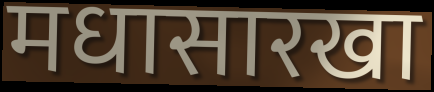
मधासारखा